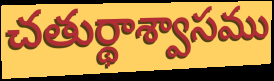
చతుర్థాశ్వాసము